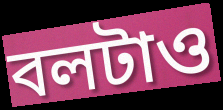
বলটাও